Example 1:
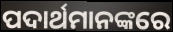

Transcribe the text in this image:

ପଦାର୍ଥମାନଙ୍କରେ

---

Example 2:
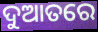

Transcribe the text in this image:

ଦୁଆତରେ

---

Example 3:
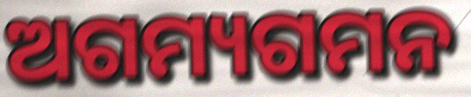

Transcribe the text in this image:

ଅଗମ୍ୟଗମନ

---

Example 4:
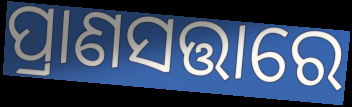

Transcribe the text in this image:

ପ୍ରାଣସତ୍ତାରେ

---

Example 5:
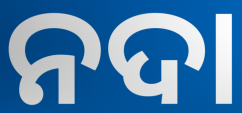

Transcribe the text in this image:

ନଦା